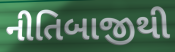
નીતિબાજીથી